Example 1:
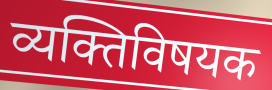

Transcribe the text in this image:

व्यक्तिविषयक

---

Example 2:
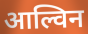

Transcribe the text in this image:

आल्विन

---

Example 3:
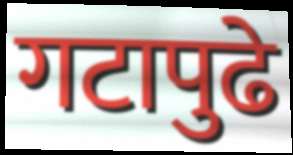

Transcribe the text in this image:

गटापुढे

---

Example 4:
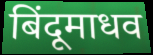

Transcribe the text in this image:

बिंदूमाधव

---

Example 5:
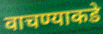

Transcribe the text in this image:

वाचण्याकडे